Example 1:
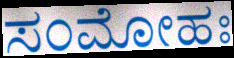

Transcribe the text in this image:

ಸಂಮೋಹಃ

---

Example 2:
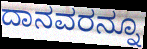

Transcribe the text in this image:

ದಾನವರನ್ನೂ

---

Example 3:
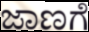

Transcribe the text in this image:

ಜಾಣಗೆ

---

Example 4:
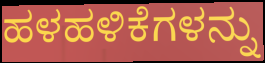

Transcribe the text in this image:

ಹಳಹಳಿಕೆಗಳನ್ನು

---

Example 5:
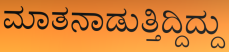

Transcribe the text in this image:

ಮಾತನಾಡುತ್ತಿದ್ದಿದ್ದು